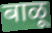
बाळू